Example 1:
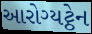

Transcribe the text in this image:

આરોગ્યટ્ઠેન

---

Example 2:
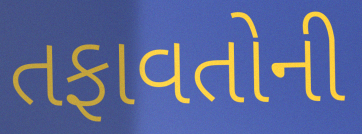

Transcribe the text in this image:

તફાવતોની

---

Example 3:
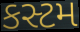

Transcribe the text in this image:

કસ્ટમ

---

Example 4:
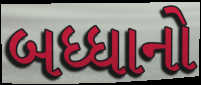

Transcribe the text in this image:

બધ્ધાનો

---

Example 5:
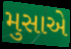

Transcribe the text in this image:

મુસાએ